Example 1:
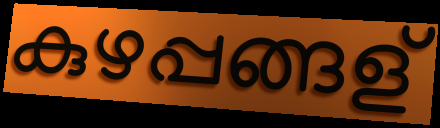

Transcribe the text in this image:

കുഴപ്പങ്ങള്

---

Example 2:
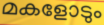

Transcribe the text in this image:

മകളോടും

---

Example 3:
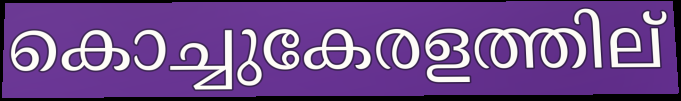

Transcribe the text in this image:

കൊച്ചുകേരളത്തില്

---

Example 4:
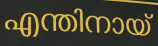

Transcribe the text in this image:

എന്തിനായ്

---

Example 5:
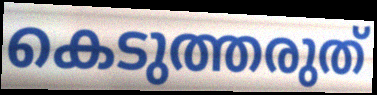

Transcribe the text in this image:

കെടുത്തരുത്